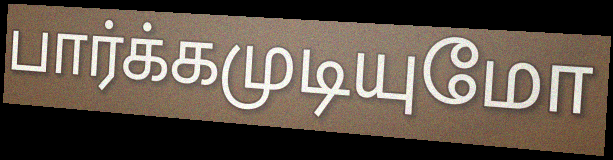
பார்க்கமுடியுமோ